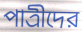
পাত্রীদের